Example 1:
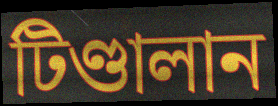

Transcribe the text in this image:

টিণ্ডালান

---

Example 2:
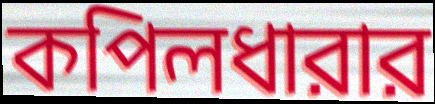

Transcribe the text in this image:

কপিলধারার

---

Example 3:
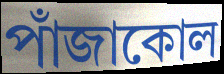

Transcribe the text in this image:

পাঁজাকোল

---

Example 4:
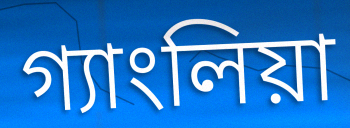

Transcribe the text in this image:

গ্যাংলিয়া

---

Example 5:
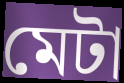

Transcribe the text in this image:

মেটা